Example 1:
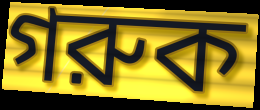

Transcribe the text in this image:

গরুক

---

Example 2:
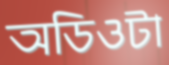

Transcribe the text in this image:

অডিওটা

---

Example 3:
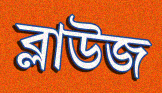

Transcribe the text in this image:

ব্লাউজ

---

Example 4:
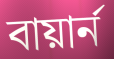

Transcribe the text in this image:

বায়ার্ন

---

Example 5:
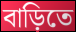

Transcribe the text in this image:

বাড়িতে